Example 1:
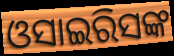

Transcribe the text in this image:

ଓସାଇରିସଙ୍କ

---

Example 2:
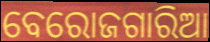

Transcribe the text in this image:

ବେରୋଜଗାରିଆ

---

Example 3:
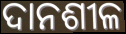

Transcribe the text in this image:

ଦାନଶୀଳ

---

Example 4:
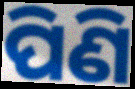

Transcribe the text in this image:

ପିଣି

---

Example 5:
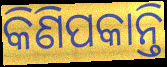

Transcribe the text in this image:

କିଣିପକାନ୍ତି